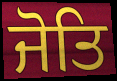
ਜੋਤਿ